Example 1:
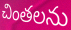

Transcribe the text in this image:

చింతలను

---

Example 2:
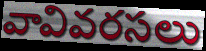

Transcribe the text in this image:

వావివరసలు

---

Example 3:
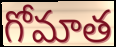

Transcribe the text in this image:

గోమాత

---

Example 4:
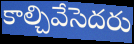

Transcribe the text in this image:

కాల్చివేసెదరు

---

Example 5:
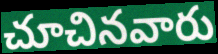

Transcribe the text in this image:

చూచినవారు